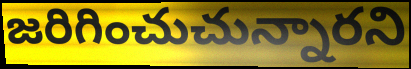
జరిగించుచున్నారని